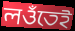
লওঁতেই